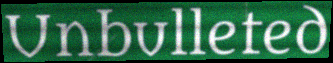
Unbulleted